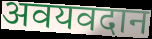
अवयवदान